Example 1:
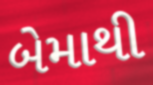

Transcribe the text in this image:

બેમાથી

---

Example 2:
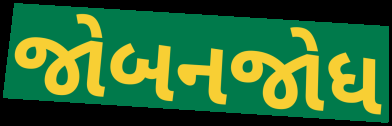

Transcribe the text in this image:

જોબનજોધ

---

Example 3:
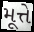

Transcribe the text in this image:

મૂત્તે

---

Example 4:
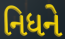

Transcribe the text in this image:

નિધને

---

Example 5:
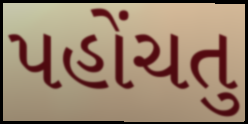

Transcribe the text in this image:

પહોંચતુ